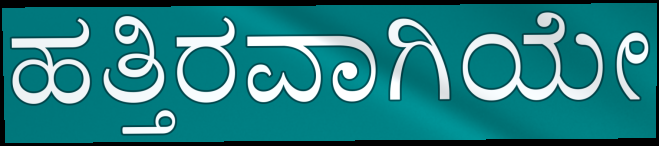
ಹತ್ತಿರವಾಗಿಯೇ